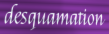
desquamation